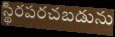
స్థిరపరచబడును